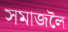
সমাজলৈ